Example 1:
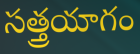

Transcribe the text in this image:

సత్త్రయాగం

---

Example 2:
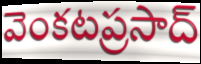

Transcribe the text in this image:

వెంకటప్రసాద్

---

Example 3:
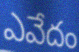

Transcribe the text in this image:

ఎవేదం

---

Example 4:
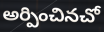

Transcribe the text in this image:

అర్పించినచో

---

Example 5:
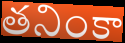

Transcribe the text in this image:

తనింకా